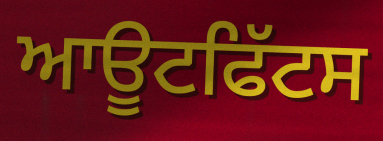
ਆਊਟਫਿੱਟਸ